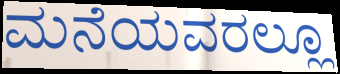
ಮನೆಯವರಲ್ಲೂ